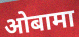
ओबामा